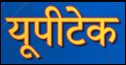
यूपीटेक